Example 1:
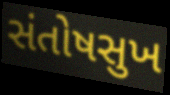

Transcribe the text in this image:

સંતોષસુખ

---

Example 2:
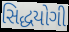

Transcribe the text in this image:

સિદ્ધયોગી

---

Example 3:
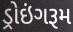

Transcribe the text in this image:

ડ્રોઇંગરૂમ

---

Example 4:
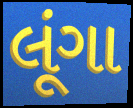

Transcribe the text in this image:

લૂંગા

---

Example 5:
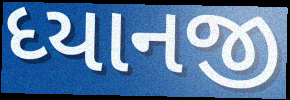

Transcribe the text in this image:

ધ્યાનજી